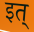
इत्